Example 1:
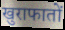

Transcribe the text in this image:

खुराफातों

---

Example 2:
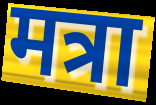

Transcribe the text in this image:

मत्रा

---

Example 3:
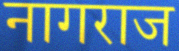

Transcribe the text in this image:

नागराज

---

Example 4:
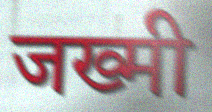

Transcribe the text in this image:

जख्मी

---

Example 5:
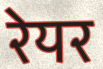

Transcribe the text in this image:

रेयर